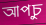
আপচু